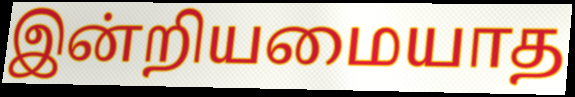
இன்றியமையாத